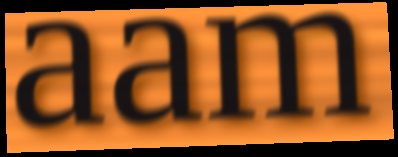
aam